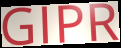
GIPR